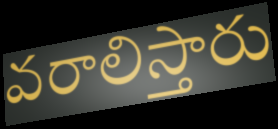
వరాలిస్తారు